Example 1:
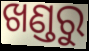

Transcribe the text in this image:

ଖଣ୍ଡରୁ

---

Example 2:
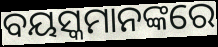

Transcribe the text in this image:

ବୟସ୍କମାନଙ୍କରେ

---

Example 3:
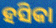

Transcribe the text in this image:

ହସିକା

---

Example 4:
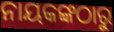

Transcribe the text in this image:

ନାୟକଙ୍କଠାରୁ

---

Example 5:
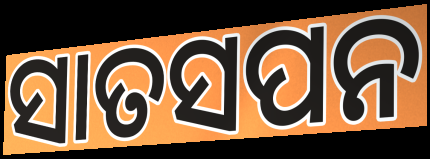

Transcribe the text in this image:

ସାତସପନ